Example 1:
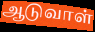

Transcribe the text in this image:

ஆடுவாள்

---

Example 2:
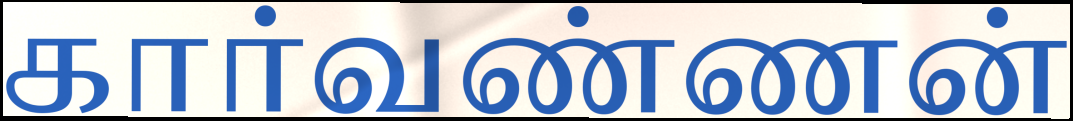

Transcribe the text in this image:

கார்வண்ணன்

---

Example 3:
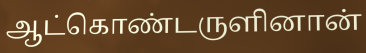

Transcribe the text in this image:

ஆட்கொண்டருளினான்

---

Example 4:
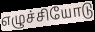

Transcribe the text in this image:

எழுச்சியோடு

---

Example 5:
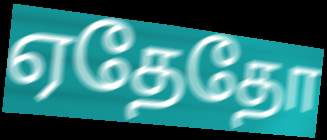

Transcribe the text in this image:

ஏதேதோ